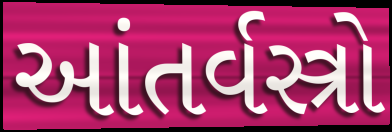
આંતર્વસ્ત્રો